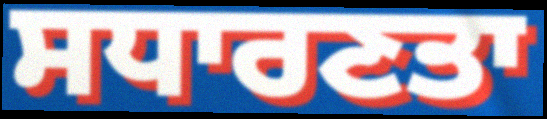
ਸਧਾਰਣਤਾ